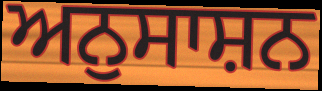
ਅਨੁਸਾਸ਼ਨ